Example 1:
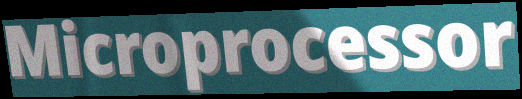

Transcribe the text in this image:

Microprocessor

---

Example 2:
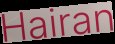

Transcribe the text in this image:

Hairan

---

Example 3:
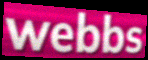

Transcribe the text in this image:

webbs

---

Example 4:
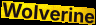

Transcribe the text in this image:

Wolverine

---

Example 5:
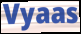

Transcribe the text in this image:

Vyaas